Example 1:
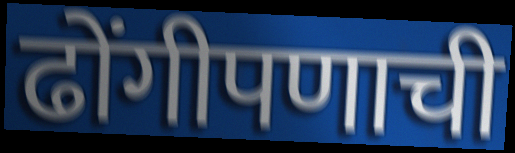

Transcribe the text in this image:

ढोंगीपणाची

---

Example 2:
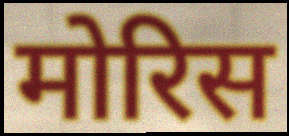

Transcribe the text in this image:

मोरिस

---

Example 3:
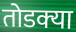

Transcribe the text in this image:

तोडक्‍या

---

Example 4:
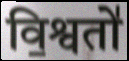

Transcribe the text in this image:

वि॒श्वतो॑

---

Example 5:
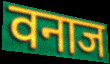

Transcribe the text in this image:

वनाज